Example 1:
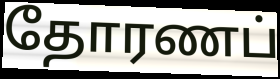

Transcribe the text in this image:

தோரணப்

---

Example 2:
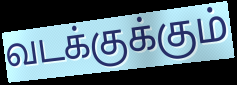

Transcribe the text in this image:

வடக்குக்கும்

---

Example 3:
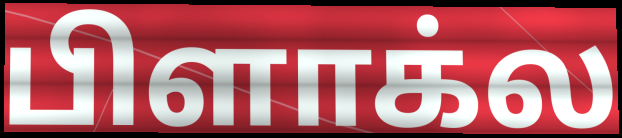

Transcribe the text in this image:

பிளாக்ல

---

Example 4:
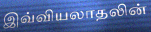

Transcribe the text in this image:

இவ்வியலாதலின்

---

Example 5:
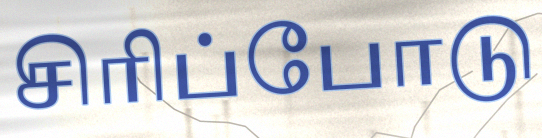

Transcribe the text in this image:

சிரிப்போடு